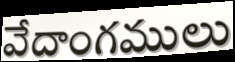
వేదాంగములు